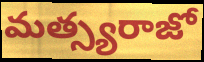
మత్స్యరాజో